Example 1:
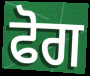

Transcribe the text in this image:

ਫੋਗ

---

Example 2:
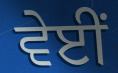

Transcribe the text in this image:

ਵੇਈਂ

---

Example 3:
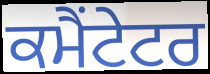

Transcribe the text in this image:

ਕਮੈਂਟੇਟਰ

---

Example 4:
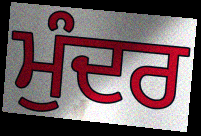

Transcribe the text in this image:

ਮੁੰਦਰ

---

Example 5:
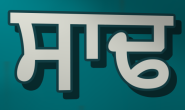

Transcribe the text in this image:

ਸਾਢ